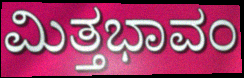
ಮಿತ್ತಭಾವಂ